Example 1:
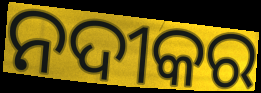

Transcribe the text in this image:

ନଦୀକର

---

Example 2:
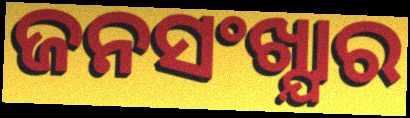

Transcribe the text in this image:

ଜନସଂଖ୍ଯାର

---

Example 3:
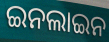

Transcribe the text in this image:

ଇନଲାଇନ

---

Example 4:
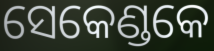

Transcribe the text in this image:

ସେକେଣ୍ଡକେ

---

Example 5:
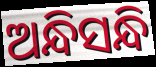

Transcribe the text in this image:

ଅନ୍ଧିସନ୍ଧି